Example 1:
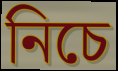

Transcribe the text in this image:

নিচে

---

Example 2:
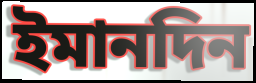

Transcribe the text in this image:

ইমানদিন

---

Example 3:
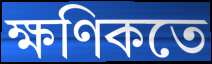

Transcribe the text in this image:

ক্ষণিকতে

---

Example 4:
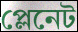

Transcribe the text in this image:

প্লেনেট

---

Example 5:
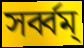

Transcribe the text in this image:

সৰ্ব্বম্